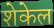
शेकेल